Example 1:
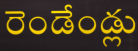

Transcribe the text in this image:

రెండేండ్లు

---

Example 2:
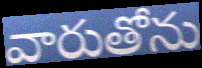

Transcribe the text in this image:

వారుతోను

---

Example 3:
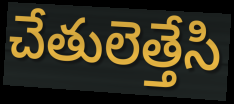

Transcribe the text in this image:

చేతులెత్తేసి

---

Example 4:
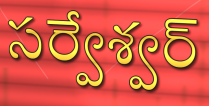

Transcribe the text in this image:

సర్వేశ్వర్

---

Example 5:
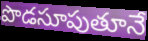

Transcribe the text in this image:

పొడసూపుతూనే